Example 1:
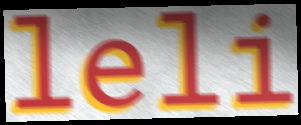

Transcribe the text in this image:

leli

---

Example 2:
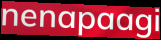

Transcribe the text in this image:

nenapaagi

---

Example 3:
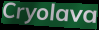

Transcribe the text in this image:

Cryolava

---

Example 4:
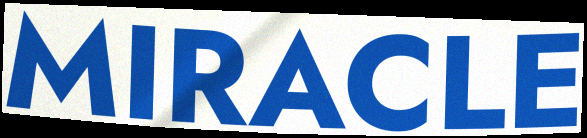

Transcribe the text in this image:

MIRACLE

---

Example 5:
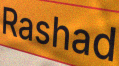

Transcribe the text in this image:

Rashad